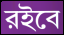
রইবে